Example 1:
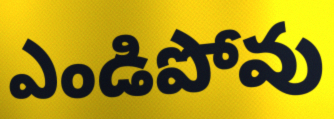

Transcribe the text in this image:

ఎండిపోవు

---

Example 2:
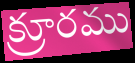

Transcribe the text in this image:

క్రూరము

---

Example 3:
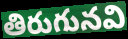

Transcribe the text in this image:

తిరుగునవి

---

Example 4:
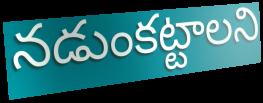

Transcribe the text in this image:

నడుంకట్టాలని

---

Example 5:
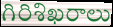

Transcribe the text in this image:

గిరిశిఖరాలు